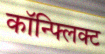
कॉन्फ्लिक्ट